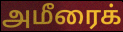
அமீரைக்